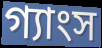
গ্যাংস